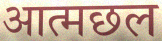
आत्मछल